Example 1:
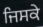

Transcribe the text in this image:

ਜਿਸਕੇ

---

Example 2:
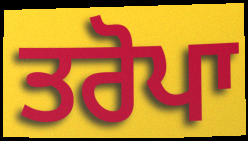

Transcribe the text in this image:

ਤਰੋਪਾ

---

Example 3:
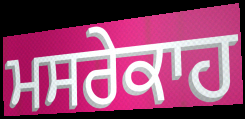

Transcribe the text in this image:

ਮਸਰੇਕਾਹ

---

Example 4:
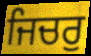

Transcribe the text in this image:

ਜਿਚਰੁ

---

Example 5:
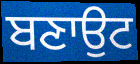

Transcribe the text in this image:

ਬਣਾਉਟ